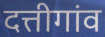
दत्तीगांव